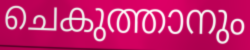
ചെകുത്താനും